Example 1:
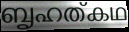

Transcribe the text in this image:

ബൃഹത്കഥ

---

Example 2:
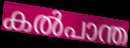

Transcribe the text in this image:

കൽപാന്ത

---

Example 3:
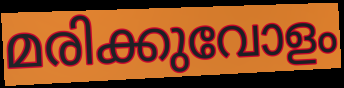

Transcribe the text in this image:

മരിക്കുവോളം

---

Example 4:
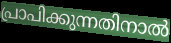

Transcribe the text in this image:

പ്രാപിക്കുന്നതിനാൽ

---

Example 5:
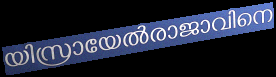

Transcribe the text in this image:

യിസ്രായേൽരാജാവിനെ